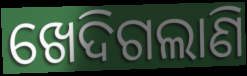
ଖେଦିଗଲାଣି